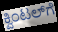
ಕ್ವಿಂಟಲ್‌ಗೆ